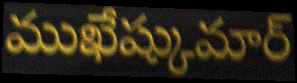
ముఖేష్కుమార్